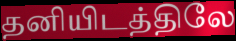
தனியிடத்திலே